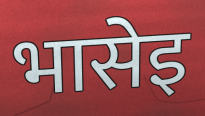
भासेइ